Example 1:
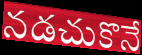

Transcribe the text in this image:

నడచుకొనే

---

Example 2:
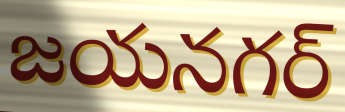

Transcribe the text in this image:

జయనగర్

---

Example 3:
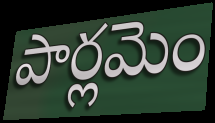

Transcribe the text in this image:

పార్లమెం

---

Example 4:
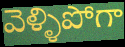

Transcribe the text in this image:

వెళ్ళిపోగా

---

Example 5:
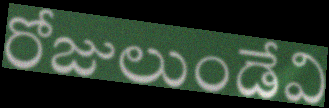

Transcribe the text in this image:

రోజులుండేవి